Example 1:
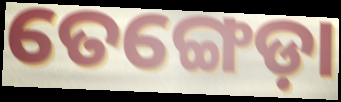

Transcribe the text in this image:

ତେଙ୍ଗେଡ଼ା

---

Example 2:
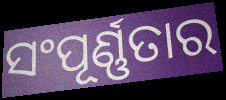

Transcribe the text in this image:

ସଂପୂର୍ଣ୍ଣତାର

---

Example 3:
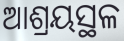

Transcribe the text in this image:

ଆଶ୍ରୟସ୍ଥଳ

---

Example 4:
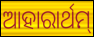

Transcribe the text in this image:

ଆହାରାର୍ଥମ୍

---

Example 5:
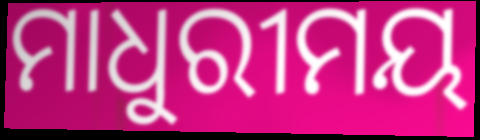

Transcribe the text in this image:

ମାଧୁରୀମୟ